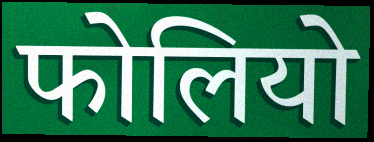
फोलियो